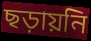
ছড়ায়নি